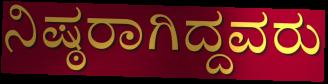
ನಿಷ್ಠರಾಗಿದ್ದವರು